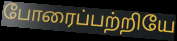
போரைப்பற்றியே